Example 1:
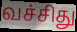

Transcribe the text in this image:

வச்சிது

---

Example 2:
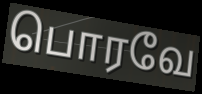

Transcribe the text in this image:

பொரவே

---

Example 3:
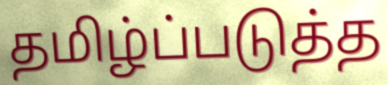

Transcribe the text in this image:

தமிழ்ப்படுத்த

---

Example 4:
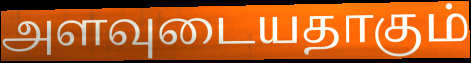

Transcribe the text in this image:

அளவுடையதாகும்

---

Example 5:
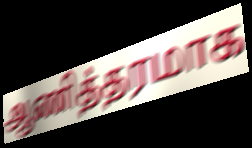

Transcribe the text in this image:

ஆணித்தரமாக